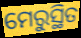
ମେରୁସ୍ଥିତ